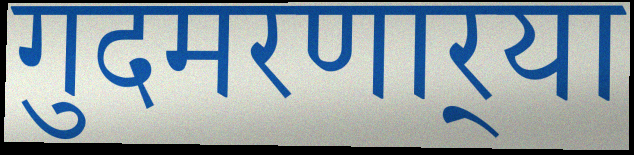
गुदमरणार्या